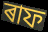
ৰাফ